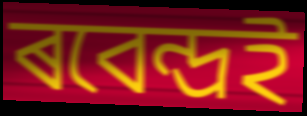
ৰবেন্দ্ৰই